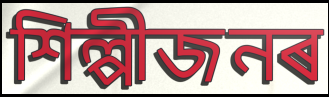
শিল্পীজনৰ